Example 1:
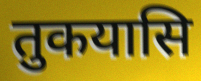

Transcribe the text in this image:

तुकयासि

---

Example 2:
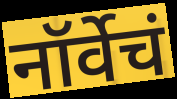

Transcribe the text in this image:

नॉर्वेचं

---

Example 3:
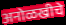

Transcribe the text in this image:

अनोळखीचे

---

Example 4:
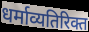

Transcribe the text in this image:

धर्माव्यतिरिक्त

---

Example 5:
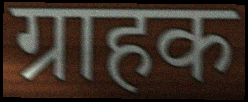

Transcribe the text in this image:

ग्राहक